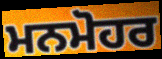
ਮਨਮੋਹਰ